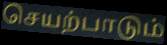
செயற்பாடும்